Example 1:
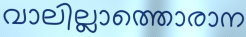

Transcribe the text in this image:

വാലില്ലാത്തൊരാന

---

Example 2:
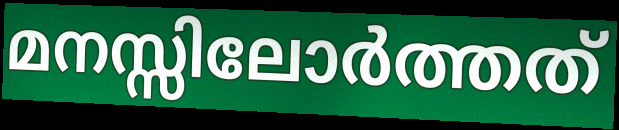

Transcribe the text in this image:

മനസ്സിലോർത്തത്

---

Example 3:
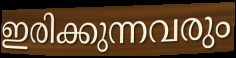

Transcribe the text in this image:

ഇരിക്കുന്നവരും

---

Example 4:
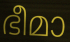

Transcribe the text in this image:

ഭീമാ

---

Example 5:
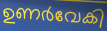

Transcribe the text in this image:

ഉണർവേകി